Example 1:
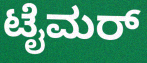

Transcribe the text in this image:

ಟೈಮರ್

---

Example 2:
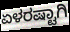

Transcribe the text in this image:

ಏಳರಷ್ಟಾಗಿ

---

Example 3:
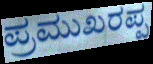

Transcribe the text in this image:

ಪ್ರಮುಖರಪ್ಪ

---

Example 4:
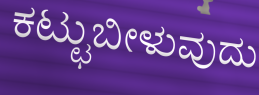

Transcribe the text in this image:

ಕಟ್ಟುಬೀಳುವುದು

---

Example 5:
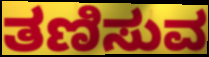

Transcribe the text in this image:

ತಣಿಸುವ